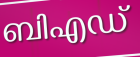
ബിഎഡ്